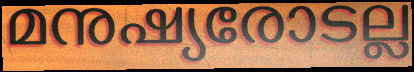
മനുഷ്യരോടല്ല